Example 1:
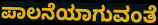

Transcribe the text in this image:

ಪಾಲನೆಯಾಗುವಂತೆ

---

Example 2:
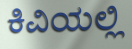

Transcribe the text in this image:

ಕಿವಿಯಲ್ಲಿ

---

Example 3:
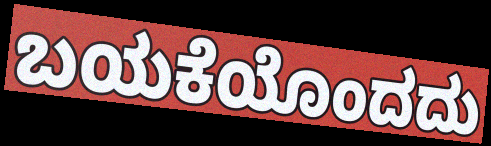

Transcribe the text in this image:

ಬಯಕೆಯೊಂದದು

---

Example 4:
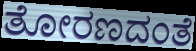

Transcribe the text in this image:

ತೋರಣದಂತೆ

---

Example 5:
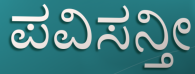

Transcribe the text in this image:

ಪವಿಸನ್ತೀ